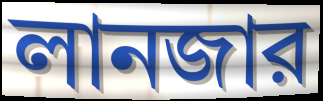
লানজার